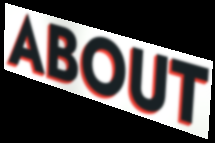
ABOUT